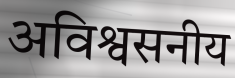
अविश्वसनीय